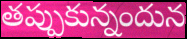
తప్పుకున్నందున